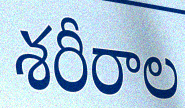
శరీరాల